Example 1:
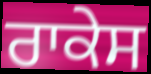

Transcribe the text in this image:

ਰਾਕੇਸ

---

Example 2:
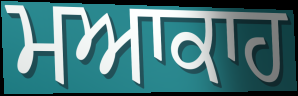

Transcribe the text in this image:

ਮਆਕਾਹ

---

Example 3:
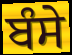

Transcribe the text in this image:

ਬੰਸੇ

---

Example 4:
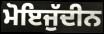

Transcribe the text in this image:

ਮੋਇਜੁੱਦੀਨ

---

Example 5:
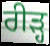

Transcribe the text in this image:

ਰੀੜ੍ਹ